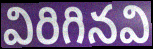
విరిగినవి